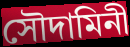
সৌদামিনী